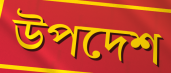
উপদেশ